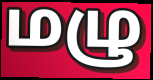
மழு